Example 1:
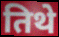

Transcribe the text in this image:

तिथे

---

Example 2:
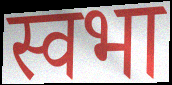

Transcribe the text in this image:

स्वभा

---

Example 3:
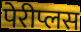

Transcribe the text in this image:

पेरीप्लस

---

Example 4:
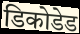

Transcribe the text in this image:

डिकोडेड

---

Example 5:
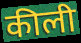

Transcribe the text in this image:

कीली